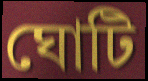
ঘোটি